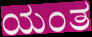
ಯಂತ